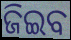
ଜିଇବ